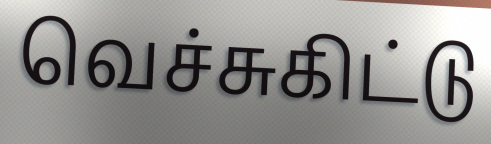
வெச்சுகிட்டு